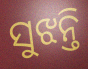
ସୁଝନ୍ତି